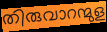
തിരുവാറന്മുള